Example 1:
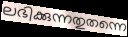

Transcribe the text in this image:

ലഭിക്കുന്നതുതന്നെ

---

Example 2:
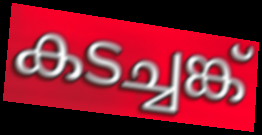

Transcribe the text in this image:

കടച്ചങ്ക്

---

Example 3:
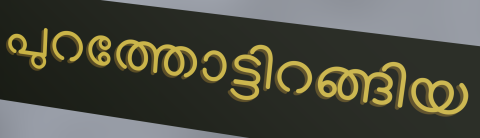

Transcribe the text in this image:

പുറത്തോട്ടിറങ്ങിയ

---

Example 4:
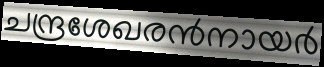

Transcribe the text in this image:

ചന്ദ്രശേഖരൻനായർ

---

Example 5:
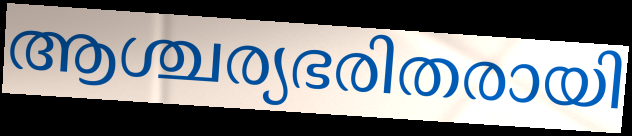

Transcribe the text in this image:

ആശ്ചര്യഭരിതരായി